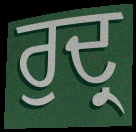
ਰੁਦ੍ਰ